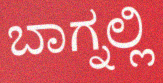
ಬಾಗ್ನಲ್ಲಿ